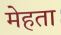
मेहता